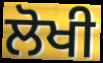
ਲੋਖੀ